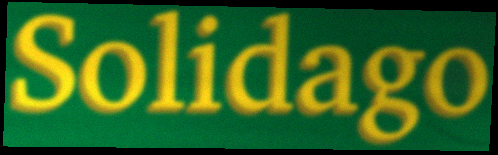
Solidago